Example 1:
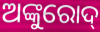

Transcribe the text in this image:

ଅଙ୍କୁରୋଦ୍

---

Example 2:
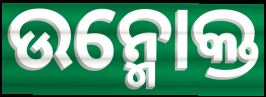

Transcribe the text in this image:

ଉନ୍ମୋକ୍ତ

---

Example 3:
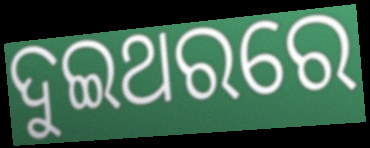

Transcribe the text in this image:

ଦୁଇଥରରେ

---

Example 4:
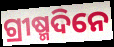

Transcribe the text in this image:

ଗ୍ରୀଷ୍ମଦିନେ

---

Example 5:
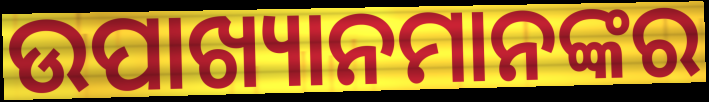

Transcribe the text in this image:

ଉପାଖ୍ୟାନମାନଙ୍କର